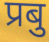
प्रबु